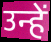
उन्हें